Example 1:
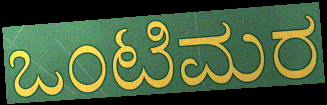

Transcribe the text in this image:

ಒಂಟಿಮರ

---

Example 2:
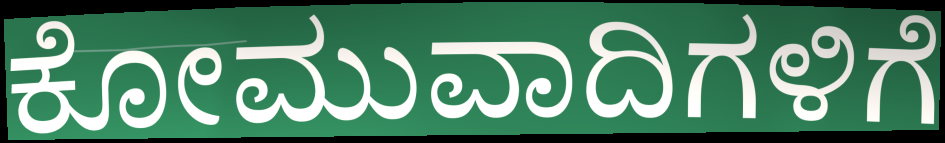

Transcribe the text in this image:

ಕೋಮುವಾದಿಗಳಿಗೆ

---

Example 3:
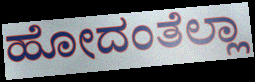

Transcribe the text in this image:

ಹೋದಂತೆಲ್ಲಾ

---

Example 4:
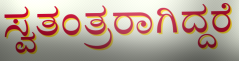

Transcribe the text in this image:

ಸ್ವತಂತ್ರರಾಗಿದ್ದರೆ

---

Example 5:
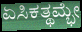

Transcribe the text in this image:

ಏಸಿಕತ್ಥಮ್ಭೇ